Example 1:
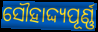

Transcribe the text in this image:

ସୌହାଦ୍ଦ୍ୟପୂର୍ଣ୍ଣ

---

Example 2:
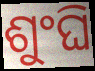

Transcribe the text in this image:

ଶୁଂଘି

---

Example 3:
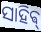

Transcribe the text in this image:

ସାହିଵ୍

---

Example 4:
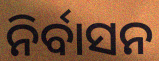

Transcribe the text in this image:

ନିର୍ବାସନ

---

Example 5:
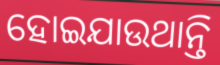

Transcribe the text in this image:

ହୋଇଯାଉଥାନ୍ତି